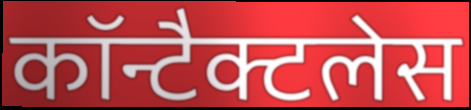
कॉन्टैक्टलेस